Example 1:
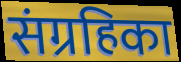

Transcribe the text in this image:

संग्रहिका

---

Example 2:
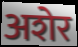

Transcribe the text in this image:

अशेर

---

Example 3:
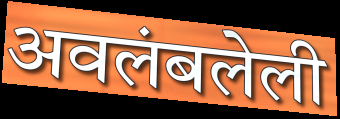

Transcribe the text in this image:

अवलंबलेली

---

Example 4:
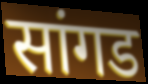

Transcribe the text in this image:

सांगड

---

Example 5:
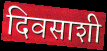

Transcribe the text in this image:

दिवसाशी